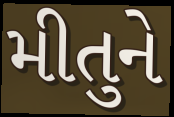
મીતુને